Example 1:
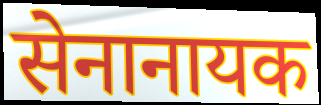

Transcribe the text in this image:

सेनानायक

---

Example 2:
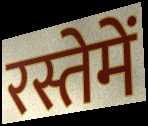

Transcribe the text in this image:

रस्तेमें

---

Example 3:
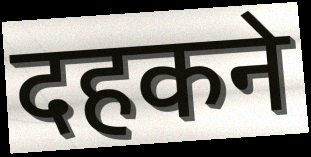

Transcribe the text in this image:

दहकने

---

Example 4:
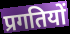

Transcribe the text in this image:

प्रगतियों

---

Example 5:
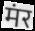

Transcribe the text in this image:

मंर